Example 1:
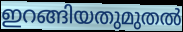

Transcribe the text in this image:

ഇറങ്ങിയതുമുതൽ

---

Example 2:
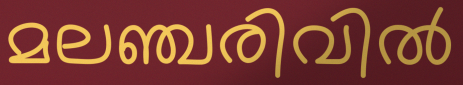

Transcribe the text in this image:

മലഞ്ചരിവിൽ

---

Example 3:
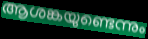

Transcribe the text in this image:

ആശങ്കയുണ്ടെന്നും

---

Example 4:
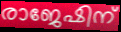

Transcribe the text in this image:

രാജേഷിന്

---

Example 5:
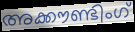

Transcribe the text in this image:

അക്കൗണ്ടിംഗ്